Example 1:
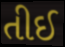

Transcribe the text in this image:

તીઈ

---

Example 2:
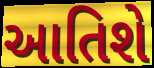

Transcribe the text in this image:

આતિશે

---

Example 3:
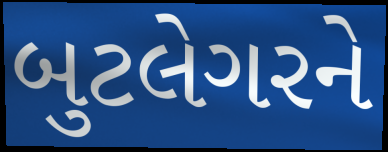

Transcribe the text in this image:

બુટલેગરને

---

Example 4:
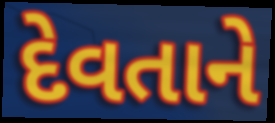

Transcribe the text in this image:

દેવતાને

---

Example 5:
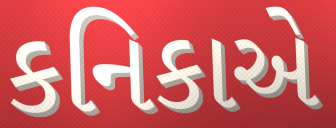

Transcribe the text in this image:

કનિકાએ